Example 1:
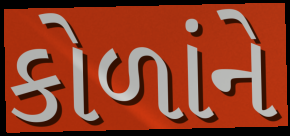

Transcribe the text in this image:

કોળાંને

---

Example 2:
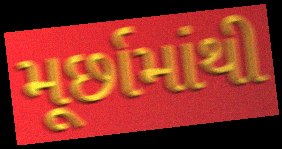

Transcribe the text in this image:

મૂર્છામાંથી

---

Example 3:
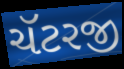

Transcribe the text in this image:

ચૅટરજી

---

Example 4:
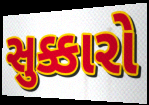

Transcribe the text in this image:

સુક્કારો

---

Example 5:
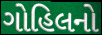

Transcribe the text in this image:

ગોહિલનો